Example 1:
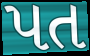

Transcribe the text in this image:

પત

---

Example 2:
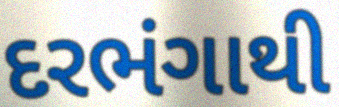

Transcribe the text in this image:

દરભંગાથી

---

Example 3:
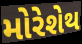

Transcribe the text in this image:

મોરેશેથ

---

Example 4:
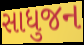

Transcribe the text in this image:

સાધુજન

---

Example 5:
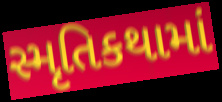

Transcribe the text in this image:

સ્મૃતિકથામાં